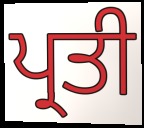
ਪ੍ਰਤੀ